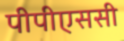
पीपीएससी